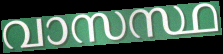
വാസസ്ഥ